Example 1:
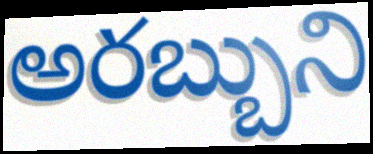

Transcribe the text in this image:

అరబ్బుని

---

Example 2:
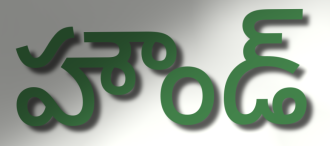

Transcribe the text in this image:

హౌండ్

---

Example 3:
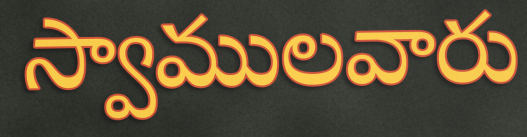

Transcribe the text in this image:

స్వాములవారు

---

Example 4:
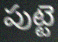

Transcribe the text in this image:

పుట్టె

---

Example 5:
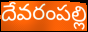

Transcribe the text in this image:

దేవరంపల్లి